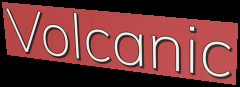
Volcanic